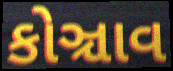
કોઞ્ચાવ